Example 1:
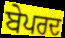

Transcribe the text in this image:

ਬੇਪਰਦ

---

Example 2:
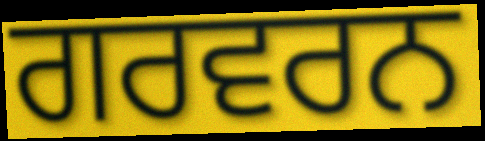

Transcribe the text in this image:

ਗਰਵਰਨ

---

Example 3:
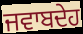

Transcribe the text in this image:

ਜਵਾਬਦੇਹ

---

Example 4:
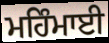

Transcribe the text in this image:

ਮਹਿੰਮਾਈ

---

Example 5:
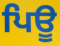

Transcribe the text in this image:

ਪਿਊ